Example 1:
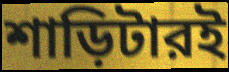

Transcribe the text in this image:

শাড়িটারই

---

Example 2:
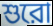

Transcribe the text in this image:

শুরো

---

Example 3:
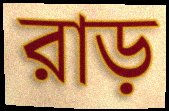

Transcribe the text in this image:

রাড়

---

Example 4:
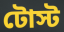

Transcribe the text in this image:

টোস্ট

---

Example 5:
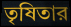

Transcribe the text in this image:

তৃষিতার